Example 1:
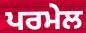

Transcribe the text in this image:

ਪਰਮੇਲ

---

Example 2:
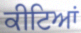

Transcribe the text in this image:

ਕੀਟਿਆਂ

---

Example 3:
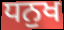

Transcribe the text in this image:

ਧਨੁਖ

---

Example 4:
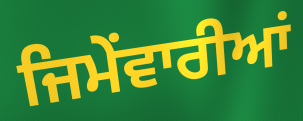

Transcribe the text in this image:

ਜਿਮੇਂਵਾਰੀਆਂ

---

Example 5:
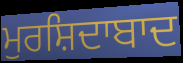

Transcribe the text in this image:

ਮੁਰਸ਼ਿਦਾਬਾਦ